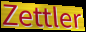
Zettler